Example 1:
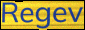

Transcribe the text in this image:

Regev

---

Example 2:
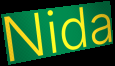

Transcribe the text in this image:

Nida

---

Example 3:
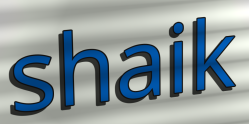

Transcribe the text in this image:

shaik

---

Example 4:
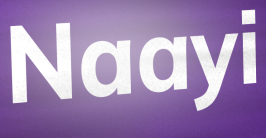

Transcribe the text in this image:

Naayi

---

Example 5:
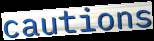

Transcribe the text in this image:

cautions